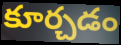
కూర్చడం